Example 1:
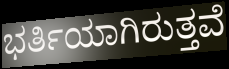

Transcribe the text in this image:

ಭರ್ತಿಯಾಗಿರುತ್ತವೆ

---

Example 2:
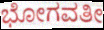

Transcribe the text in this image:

ಭೋಗವತೀ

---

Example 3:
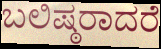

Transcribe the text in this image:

ಬಲಿಷ್ಠರಾದರೆ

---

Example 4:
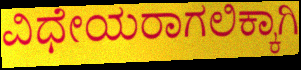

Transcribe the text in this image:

ವಿಧೇಯರಾಗಲಿಕ್ಕಾಗಿ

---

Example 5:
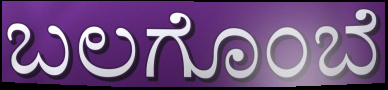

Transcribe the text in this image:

ಬಲಗೊಂಬೆ